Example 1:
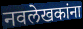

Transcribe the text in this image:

नवलेखकांना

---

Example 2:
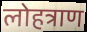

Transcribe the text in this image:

लोहत्राण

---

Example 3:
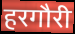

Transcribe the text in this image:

हरगौरी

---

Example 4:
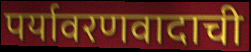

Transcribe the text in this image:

पर्यावरणवादाची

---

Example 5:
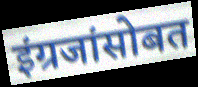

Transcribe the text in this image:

इंग्रजांसोबत